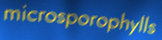
microsporophylls